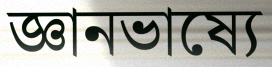
জ্ঞানভাষ্যে